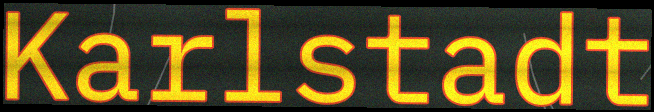
Karlstadt